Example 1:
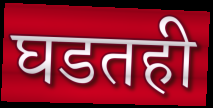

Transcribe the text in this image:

घडतही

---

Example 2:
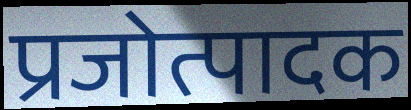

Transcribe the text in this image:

प्रजोत्पादक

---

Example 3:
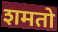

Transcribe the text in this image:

शमतो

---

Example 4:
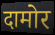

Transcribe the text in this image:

दामोर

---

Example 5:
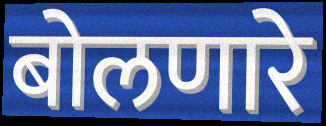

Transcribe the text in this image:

बोलणारे